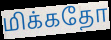
மிக்கதோ